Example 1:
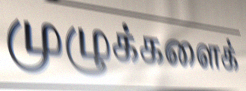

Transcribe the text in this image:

முழுக்களைக்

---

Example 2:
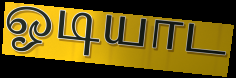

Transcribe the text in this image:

ஓடியாட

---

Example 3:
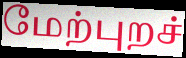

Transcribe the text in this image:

மேற்புறச்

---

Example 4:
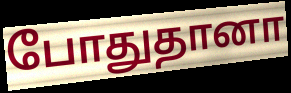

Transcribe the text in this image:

போதுதானா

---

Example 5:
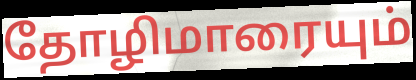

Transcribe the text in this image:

தோழிமாரையும்